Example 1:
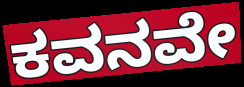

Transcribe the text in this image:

ಕವನವೇ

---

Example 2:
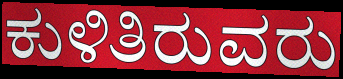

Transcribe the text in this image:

ಕುಳಿತಿರುವರು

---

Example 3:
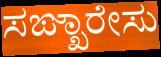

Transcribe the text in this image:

ಸಙ್ಖಾರೇಸು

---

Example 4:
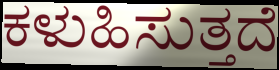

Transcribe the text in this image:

ಕಳುಹಿಸುತ್ತದೆ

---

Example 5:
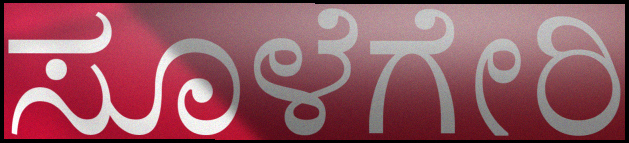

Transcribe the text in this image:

ಸೂಳೆಗೇರಿ